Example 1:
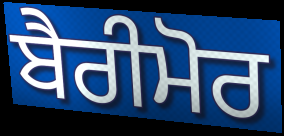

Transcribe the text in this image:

ਬੈਰੀਮੋਰ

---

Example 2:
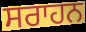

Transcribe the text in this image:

ਸਰਾਹਨ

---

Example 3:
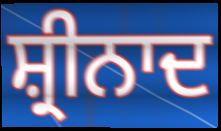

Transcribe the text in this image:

ਸ਼੍ਰੀਨਾਦ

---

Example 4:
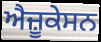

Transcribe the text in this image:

ਐਜ਼ੂਕੇਸਨ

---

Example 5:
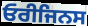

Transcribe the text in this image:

ਓਰੀਜਿਨਸ